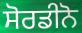
ਸੋਰਡੀਨੋ